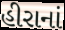
હીરાનાં